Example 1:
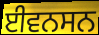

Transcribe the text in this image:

ਈਵਨਸਨ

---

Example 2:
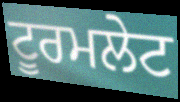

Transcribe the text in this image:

ਟੂਰਮਲੇਟ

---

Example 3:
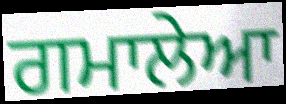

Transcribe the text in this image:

ਗਮਾਲੇਆ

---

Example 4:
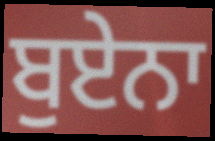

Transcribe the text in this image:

ਬੁਏਨਾ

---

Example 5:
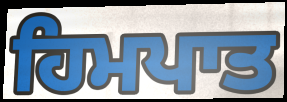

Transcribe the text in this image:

ਹਿਮਪਾਤ